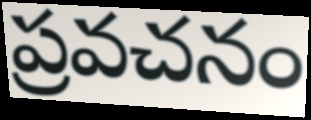
ప్రవచనం